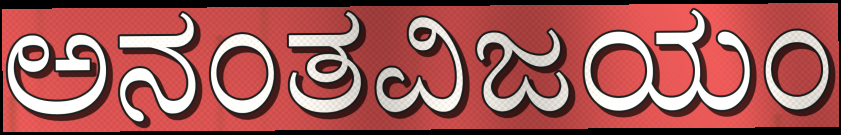
ಅನಂತವಿಜಯಂ